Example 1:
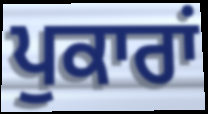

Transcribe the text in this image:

ਪੁਕਾਰਾਂ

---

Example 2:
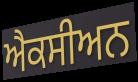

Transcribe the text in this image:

ਐਕਸੀਅਨ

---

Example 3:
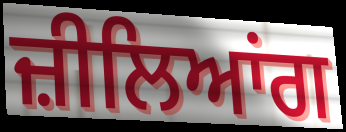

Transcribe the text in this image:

ਜ਼ੀਲਿਆਂਗ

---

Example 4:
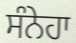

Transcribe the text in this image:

ਸੰਨੇਹਾ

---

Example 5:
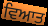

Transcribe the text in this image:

ਵਿਆਤ